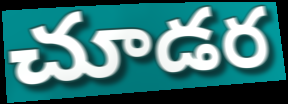
చూడర